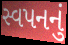
સ્વપનનું